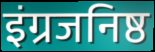
इंग्रजनिष्ठ